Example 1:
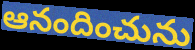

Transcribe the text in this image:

ఆనందించును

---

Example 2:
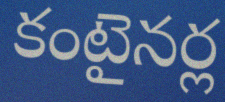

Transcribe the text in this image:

కంటైనర్ల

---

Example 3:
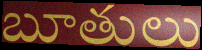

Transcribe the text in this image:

బూతులు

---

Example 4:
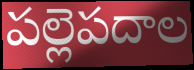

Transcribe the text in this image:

పల్లెపదాల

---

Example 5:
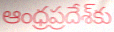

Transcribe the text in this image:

ఆంధ్రప్రదేశ్‌కు